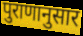
पुराणानुसार